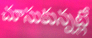
చూసుకున్నట్లే